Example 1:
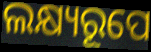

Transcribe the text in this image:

ଲକ୍ଷ୍ୟରୂପେ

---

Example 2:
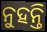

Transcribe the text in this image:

ନୁହନ୍ତି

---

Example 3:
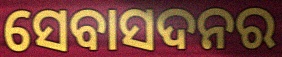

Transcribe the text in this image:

ସେବାସଦନର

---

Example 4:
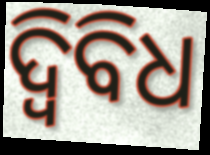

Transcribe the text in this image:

ଦ୍ଵିବିଧ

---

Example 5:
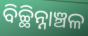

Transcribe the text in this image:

ବିଚ୍ଛିନ୍ନାଞ୍ଚଳ